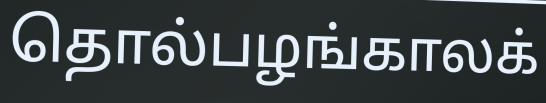
தொல்பழங்காலக்